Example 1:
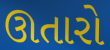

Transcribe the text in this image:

ઊતારો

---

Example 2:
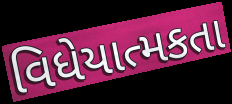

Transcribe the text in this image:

વિધેયાત્મકતા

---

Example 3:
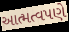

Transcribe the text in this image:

આત્મત્વપણે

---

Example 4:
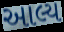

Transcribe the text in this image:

આલ્ય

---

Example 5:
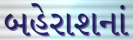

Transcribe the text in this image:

બહેરાશનાં